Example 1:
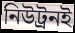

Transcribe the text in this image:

নিউট্রনই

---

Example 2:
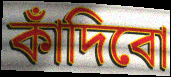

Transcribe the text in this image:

কাঁদিবো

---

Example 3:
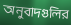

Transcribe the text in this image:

অনুবাদগুলির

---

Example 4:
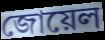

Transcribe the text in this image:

জোয়েল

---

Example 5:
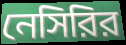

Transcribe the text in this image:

নেসিরির